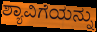
ಶ್ಯಾವಿಗೆಯನ್ನು